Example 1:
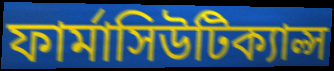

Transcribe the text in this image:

ফার্মাসিউটিক্যাল্স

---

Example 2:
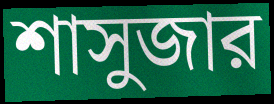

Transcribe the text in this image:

শাসুজার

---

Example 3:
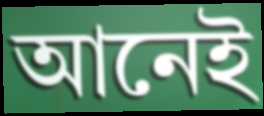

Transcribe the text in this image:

আনেই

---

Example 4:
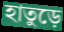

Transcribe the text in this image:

হাতুড়ে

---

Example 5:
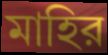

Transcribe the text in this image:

মাহির